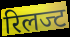
रिलज्ट